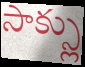
సాక్స్లు